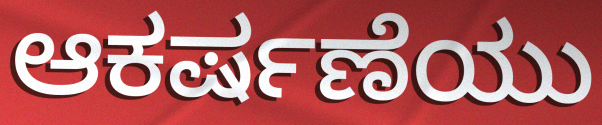
ಆಕರ್ಷಣೆಯು